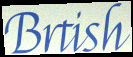
Brtish